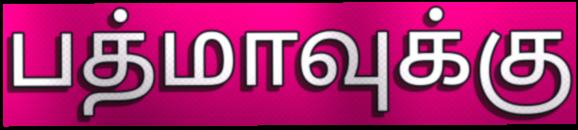
பத்மாவுக்கு